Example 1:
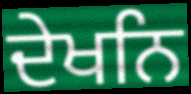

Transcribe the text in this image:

ਦੇਖਨਿ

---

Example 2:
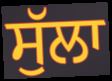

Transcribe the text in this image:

ਸੁੱਲਾ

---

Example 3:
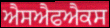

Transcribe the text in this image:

ਐਸਐਫਐਕਸ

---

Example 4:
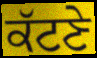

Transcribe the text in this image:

ਕੱਟਣੇ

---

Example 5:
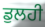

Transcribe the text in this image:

ਡੁਲਹੀ